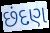
છંદણ